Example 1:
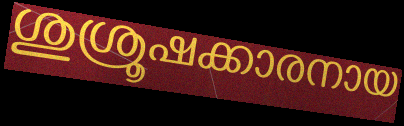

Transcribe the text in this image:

ശുശ്രൂഷക്കാരനായ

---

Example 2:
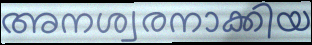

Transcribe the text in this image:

അനശ്വരനാക്കിയ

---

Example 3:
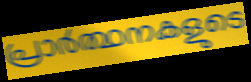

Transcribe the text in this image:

പ്രാർത്ഥനകളുടെ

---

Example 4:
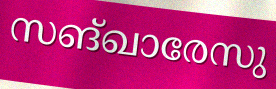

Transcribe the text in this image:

സങ്ഖാരേസു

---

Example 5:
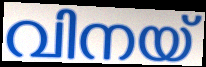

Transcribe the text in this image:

വിനയ്